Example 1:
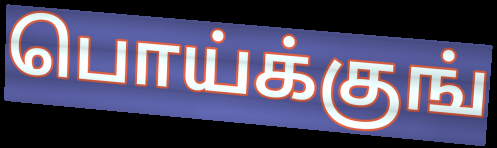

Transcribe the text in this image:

பொய்க்குங்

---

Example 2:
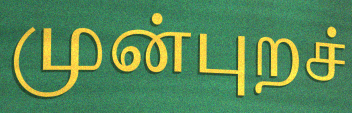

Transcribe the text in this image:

முன்புறச்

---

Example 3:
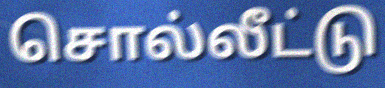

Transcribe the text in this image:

சொல்லீட்டு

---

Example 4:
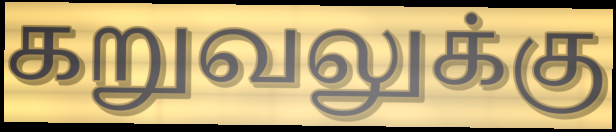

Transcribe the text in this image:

கறுவலுக்கு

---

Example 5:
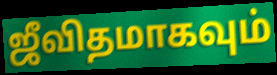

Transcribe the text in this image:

ஜீவிதமாகவும்